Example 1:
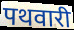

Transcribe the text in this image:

पथवारी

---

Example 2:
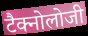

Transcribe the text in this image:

टैक्नोलोजी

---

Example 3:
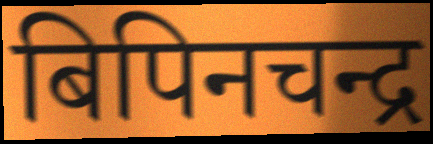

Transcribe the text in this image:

बिपिनचन्द्र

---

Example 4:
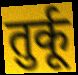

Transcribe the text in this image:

तुर्कू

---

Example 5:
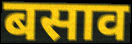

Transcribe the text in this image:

बसाव